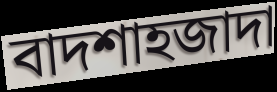
বাদশাহজাদা